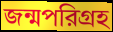
জন্মপরিগ্রহ